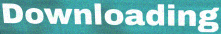
Downloading